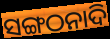
ସଙ୍ଗଠନାଦି